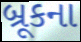
બ્રૂકના